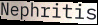
Nephritis